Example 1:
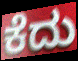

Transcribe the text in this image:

ಕೆದು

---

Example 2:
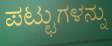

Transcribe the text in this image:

ಪಟ್ಟುಗಳನ್ನು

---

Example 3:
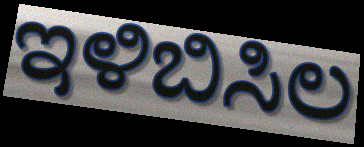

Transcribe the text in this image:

ಇಳಿಬಿಸಿಲ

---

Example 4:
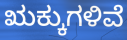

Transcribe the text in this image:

ಋಕ್ಕುಗಳಿವೆ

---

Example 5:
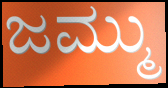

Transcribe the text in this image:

ಜಮ್ಮು